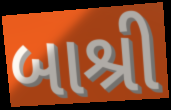
બાશ્રી